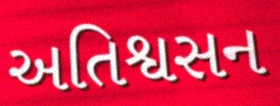
અતિશ્વસન